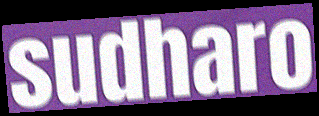
sudharo